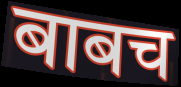
बाबच